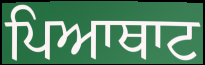
ਪਿਆਥਾਟ